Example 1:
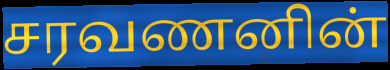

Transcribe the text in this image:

சரவணனின்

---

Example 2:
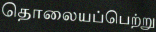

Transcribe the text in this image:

தொலையப்பெற்று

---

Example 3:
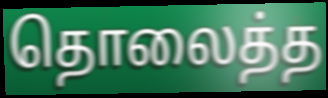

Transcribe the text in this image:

தொலைத்த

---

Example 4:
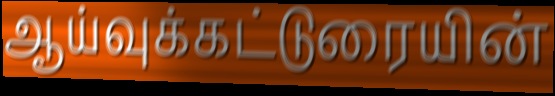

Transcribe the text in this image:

ஆய்வுக்கட்டுரையின்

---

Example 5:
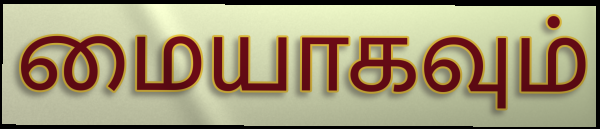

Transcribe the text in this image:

மையாகவும்